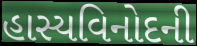
હાસ્યવિનોદની